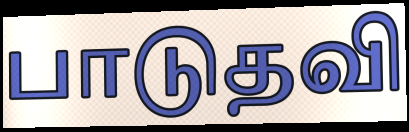
பாடுதவி